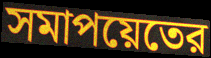
সমাপয়েতের